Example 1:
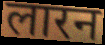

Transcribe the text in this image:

लारन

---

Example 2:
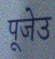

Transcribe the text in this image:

पूजेउ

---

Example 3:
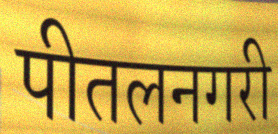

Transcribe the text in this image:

पीतलनगरी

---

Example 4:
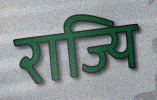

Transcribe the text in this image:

राज्यि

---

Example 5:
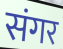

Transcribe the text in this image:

संगर